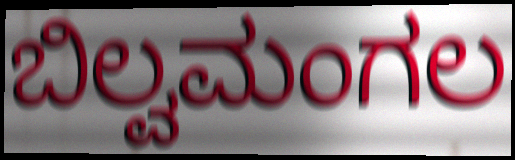
ಬಿಲ್ವಮಂಗಲ